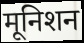
मूनिशन